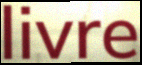
livre